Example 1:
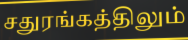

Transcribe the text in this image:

சதுரங்கத்திலும்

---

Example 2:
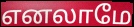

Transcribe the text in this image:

எனலாமே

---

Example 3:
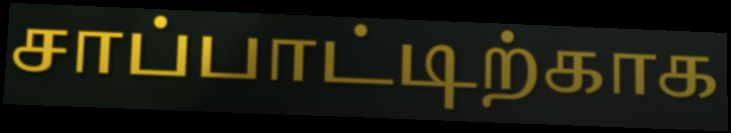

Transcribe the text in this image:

சாப்பாட்டிற்காக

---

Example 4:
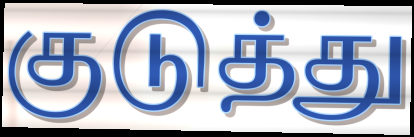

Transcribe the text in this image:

குடுத்து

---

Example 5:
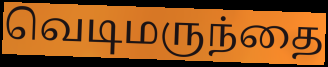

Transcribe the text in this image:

வெடிமருந்தை